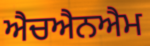
ਐਚਐਨਐਮ